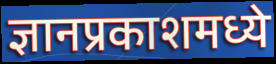
ज्ञानप्रकाशमध्ये